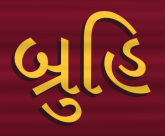
બ્રુહિ